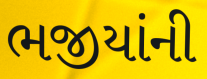
ભજીયાંની